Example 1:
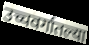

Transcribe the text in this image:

उच्चवर्गातल्या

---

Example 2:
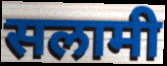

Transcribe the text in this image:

सलामी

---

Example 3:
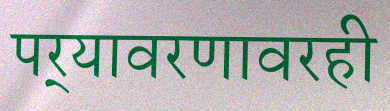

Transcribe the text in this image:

पर्यावरणावरही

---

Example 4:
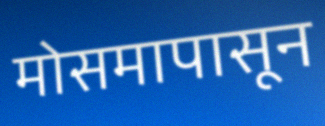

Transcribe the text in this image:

मोसमापासून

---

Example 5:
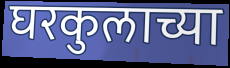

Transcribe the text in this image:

घरकुलाच्या